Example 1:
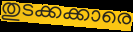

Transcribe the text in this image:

തുടക്കക്കാരെ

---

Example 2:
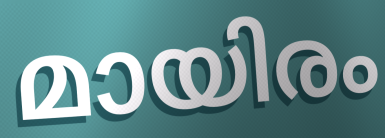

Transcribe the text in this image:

മായിരം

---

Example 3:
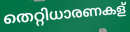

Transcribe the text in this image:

തെറ്റിധാരണകള്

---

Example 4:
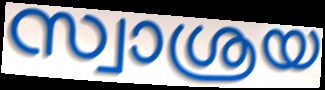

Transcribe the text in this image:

സ്വാശ്രയ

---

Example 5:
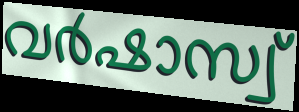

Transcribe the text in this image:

വർഷാസ്വ്